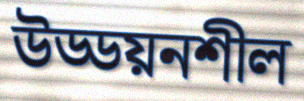
উড্ডয়নশীল